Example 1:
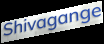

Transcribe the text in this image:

Shivagange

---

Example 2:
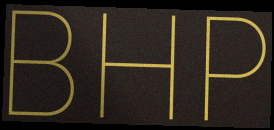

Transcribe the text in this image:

BHP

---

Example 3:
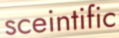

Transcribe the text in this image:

sceintific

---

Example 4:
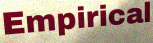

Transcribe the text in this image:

Empirical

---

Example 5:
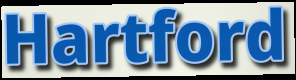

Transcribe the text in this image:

Hartford